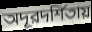
অদূরদর্শিতায়